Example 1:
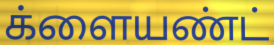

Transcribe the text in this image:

க்ளையண்ட்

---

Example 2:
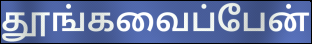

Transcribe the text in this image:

தூங்கவைப்பேன்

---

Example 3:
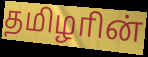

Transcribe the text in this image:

தமிழரின்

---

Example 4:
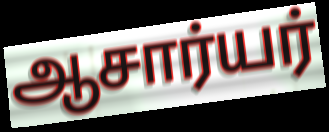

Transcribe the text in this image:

ஆசார்யர்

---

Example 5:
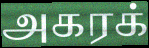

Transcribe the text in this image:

அகரக்